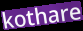
kothare